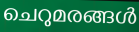
ചെറുമരങ്ങൾ